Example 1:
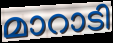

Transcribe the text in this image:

മാറാടി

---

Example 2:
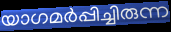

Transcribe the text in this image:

യാഗമർപ്പിച്ചിരുന്ന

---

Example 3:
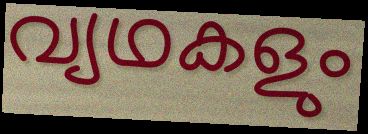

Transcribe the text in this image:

വ്യഥകളും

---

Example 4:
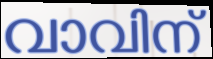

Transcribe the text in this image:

വാവിന്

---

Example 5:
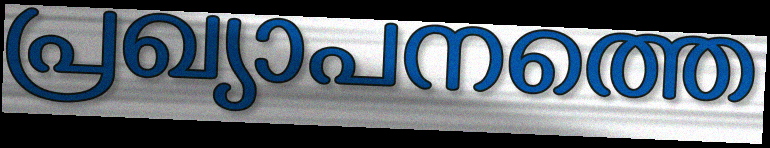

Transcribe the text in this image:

പ്രഖ്യാപനത്തെ